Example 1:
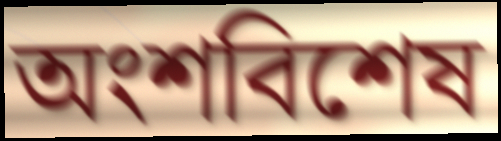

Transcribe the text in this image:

অংশবিশেষ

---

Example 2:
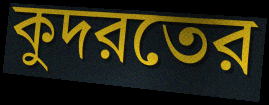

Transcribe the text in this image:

কুদরতের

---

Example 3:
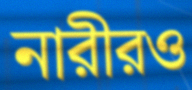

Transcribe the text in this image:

নারীরও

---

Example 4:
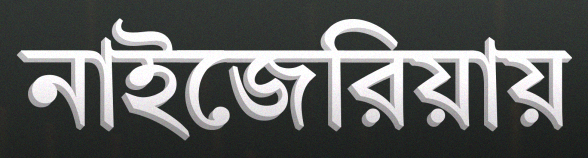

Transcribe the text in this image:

নাইজেরিয়ায়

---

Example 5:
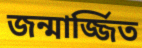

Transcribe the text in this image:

জন্মার্জ্জিত